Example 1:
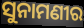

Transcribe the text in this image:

ସୁନାମଣୀର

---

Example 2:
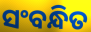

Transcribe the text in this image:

ସଂବନ୍ଧିତ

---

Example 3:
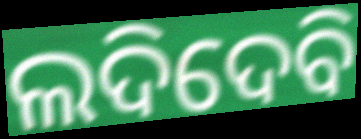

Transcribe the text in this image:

ଲଦିଦେବି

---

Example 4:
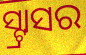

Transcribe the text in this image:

ସ୍ଟ୍ରାସର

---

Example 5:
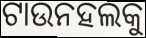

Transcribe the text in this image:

ଟାଉନହଲକୁ